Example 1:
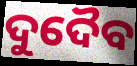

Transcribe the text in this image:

ଦୁଦୈବ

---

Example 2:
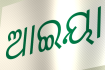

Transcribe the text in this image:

ଆଇୟା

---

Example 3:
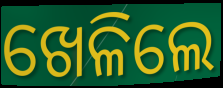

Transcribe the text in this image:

ଖେଳିଲେ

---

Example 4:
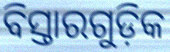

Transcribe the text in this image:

ବିସ୍ତାରଗୁଡ଼ିକ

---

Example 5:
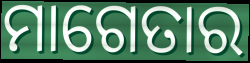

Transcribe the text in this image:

ମାଗେତାର